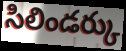
సిలిండర్కు